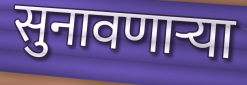
सुनावणाऱ्या